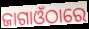
ଜାଗାଓଁଠାରେ